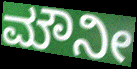
ಮೌನೀ